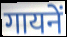
गायनें